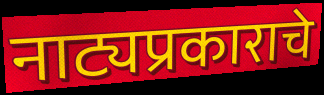
नाट्यप्रकाराचे